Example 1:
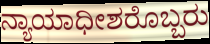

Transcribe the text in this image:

ನ್ಯಾಯಾಧೀಶರೊಬ್ಬರು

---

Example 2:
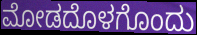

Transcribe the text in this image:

ಮೋಡದೊಳಗೊಂದು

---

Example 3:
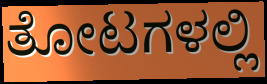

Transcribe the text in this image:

ತೋಟಗಳಲ್ಲಿ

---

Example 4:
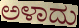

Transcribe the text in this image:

ಅಳಾದು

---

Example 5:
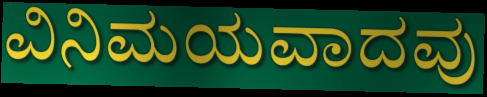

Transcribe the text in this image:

ವಿನಿಮಯವಾದವು